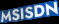
MSISDN